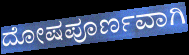
ದೋಷಪೂರ್ಣವಾಗಿ